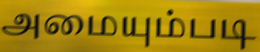
அமையும்படி